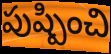
పుష్పించి